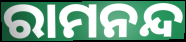
ରାମନନ୍ଦ